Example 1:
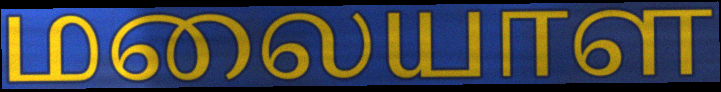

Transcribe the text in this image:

மலையாள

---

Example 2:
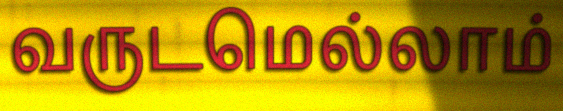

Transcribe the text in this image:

வருடமெல்லாம்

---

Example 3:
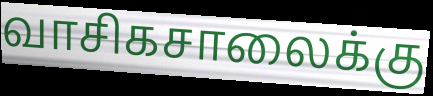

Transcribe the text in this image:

வாசிகசாலைக்கு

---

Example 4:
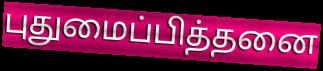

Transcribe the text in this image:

புதுமைப்பித்தனை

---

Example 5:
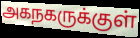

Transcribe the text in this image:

அகநகருக்குள்